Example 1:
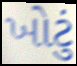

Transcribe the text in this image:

ખોટું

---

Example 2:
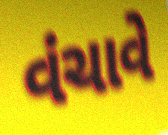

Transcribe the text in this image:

વંચાવે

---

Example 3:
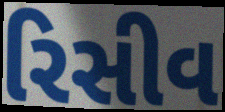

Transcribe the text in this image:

રિસીવ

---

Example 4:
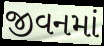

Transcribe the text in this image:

જીવનમાં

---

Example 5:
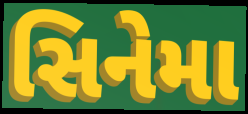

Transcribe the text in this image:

સિનેમા